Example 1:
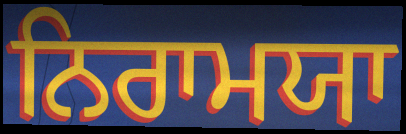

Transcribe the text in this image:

ਨਿਰਾਮਯਾ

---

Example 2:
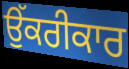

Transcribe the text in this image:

ਉੱਕਰੀਕਾਰ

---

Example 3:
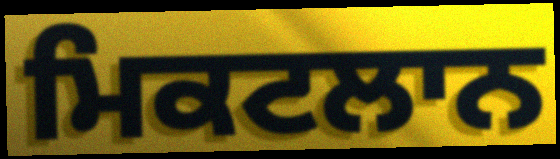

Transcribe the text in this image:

ਮਿਕਟਲਾਨ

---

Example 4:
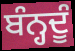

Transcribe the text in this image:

ਬੰਨ੍ਹਦੂੰ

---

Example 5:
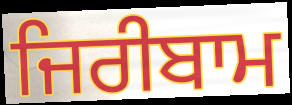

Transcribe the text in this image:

ਜਿਰੀਬਾਮ